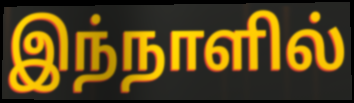
இந்நாளில்